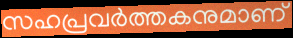
സഹപ്രവർത്തകനുമാണ്